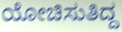
ಯೋಚಿಸುತಿದ್ದ